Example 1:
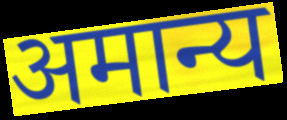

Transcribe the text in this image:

अमान्य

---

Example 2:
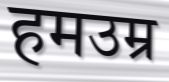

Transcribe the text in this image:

हमउम्र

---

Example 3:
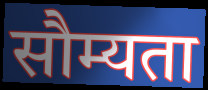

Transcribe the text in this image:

सौम्यता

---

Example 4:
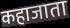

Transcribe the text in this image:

कहाजाता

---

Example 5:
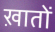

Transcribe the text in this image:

ख़ातों